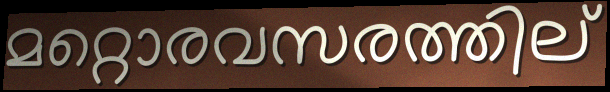
മറ്റൊരവസരത്തില്